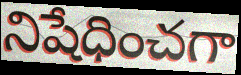
నిషేధించగా